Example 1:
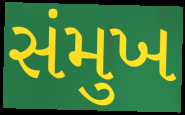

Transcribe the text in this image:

સંમુખ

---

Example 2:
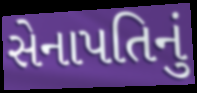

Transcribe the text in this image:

સેનાપતિનું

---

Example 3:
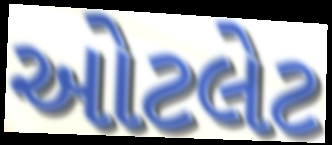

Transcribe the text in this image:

ઓટલેટ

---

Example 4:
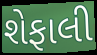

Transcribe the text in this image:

શેફાલી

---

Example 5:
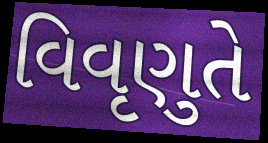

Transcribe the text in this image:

વિવૃણુતે